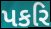
પકરિ